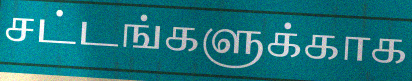
சட்டங்களுக்காக